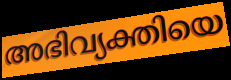
അഭിവ്യക്തിയെ